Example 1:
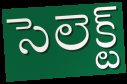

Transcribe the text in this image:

సెలెక్ట్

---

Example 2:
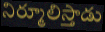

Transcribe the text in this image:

నిర్మూలిస్తాడు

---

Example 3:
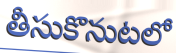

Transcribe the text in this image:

తీసుకొనుటలో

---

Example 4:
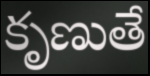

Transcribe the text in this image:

కృణుతే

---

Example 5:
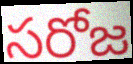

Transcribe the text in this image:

సరోజ